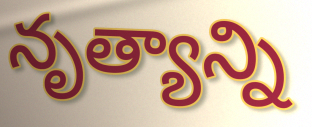
నృత్యాన్ని